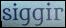
siggir